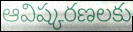
ఆవిష్కరణలకు